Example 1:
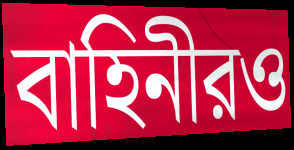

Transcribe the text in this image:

বাহিনীরও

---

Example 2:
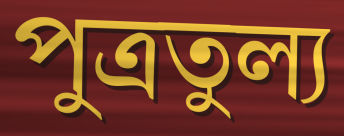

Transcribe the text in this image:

পুত্রতুল্য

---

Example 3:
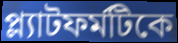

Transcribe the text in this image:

প্ল্যাটফর্মটিকে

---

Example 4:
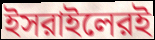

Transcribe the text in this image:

ইসরাইলেরই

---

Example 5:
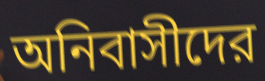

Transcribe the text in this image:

অনিবাসীদের